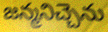
జన్మనిచ్చెను